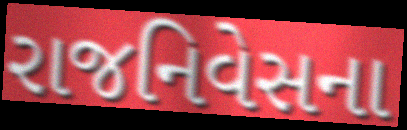
રાજનિવેસના